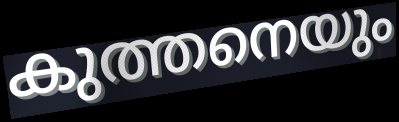
കുത്തനെയും